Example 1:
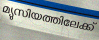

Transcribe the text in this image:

മ്യുസിയത്തിലേക്ക്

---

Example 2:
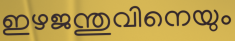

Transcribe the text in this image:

ഇഴജന്തുവിനെയും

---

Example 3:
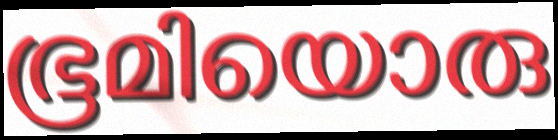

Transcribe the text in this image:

ഭൂമിയൊരു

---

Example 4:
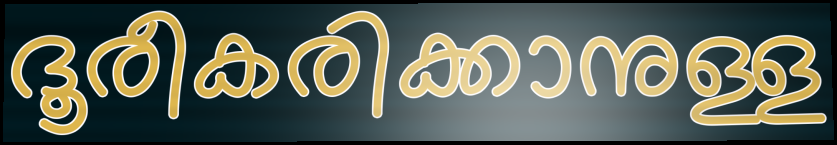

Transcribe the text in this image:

ദൂരീകരിക്കാനുള്ള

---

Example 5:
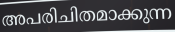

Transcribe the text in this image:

അപരിചിതമാക്കുന്ന